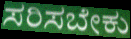
ಸರಿಸಬೇಕು